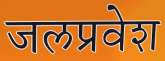
जलप्रवेश